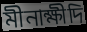
মীনাক্ষীদি